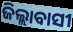
ଜିଲ୍ଲାବାସୀ